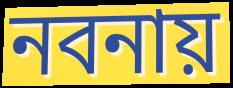
নবনায়